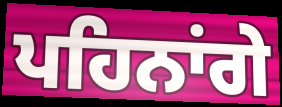
ਪਹਿਨਾਂਗੇ